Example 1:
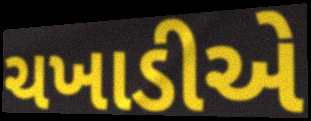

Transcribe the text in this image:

ચખાડીએ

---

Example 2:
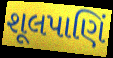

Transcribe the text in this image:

શૂલપાણિં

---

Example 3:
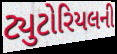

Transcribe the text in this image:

ટ્યુટોરિયલની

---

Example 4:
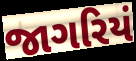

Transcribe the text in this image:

જાગરિયં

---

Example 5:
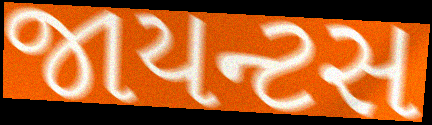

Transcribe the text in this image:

જાયન્ટસ